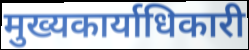
मुख्यकार्याधिकारी